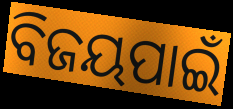
ବିଜୟପାଇଁ